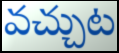
వచ్చుట